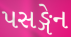
પસઙ્ગેન